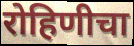
रोहिणीचा